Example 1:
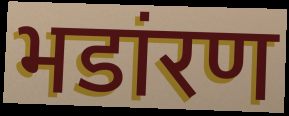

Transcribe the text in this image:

भडांरण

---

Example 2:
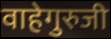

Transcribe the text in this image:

वाहेगुरुजी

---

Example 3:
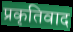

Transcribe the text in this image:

प्रकृतिवाद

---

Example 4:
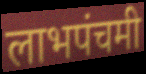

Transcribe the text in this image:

लाभपंचमी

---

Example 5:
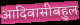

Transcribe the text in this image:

आदिवासीबहुल